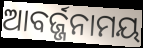
ଆବର୍ଜ୍ଜନାମୟ